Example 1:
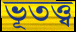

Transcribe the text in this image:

ভূতত্ত্ব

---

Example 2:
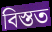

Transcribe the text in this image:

বিস্তত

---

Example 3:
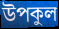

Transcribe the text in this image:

উপকুল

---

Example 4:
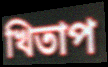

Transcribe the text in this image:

খিতাপ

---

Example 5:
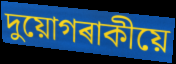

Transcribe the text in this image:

দুয়োগৰাকীয়ে